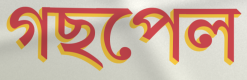
গছপেল